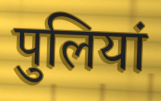
पुलियां